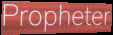
Propheter